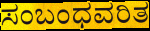
ಸಂಬಂಧವರಿತ